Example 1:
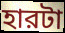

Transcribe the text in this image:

হারটা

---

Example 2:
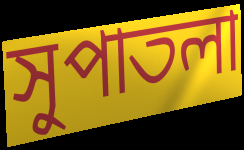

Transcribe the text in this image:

সুপাতলা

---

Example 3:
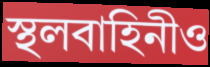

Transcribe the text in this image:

স্থলবাহিনীও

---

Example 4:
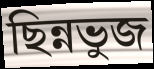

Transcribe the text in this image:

ছিন্নভুজ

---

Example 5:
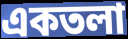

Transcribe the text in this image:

একতলা